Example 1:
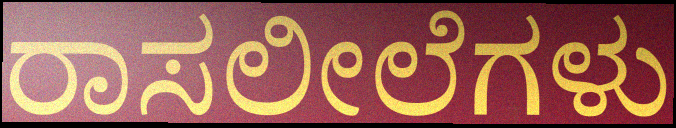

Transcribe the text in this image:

ರಾಸಲೀಲೆಗಳು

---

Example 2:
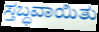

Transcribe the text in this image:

ಸ್ತಬ್ಧವಾಯಿತು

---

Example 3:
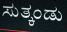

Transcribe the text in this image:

ಸುತ್ಕಂಡು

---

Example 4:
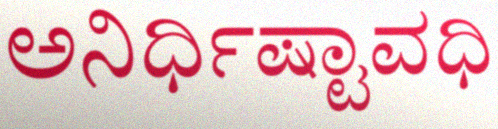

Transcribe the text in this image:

ಅನಿರ್ಧಿಷ್ಟಾವಧಿ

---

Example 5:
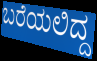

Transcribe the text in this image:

ಬರೆಯಲಿದ್ದ